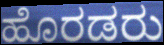
ಹೊರಡರು